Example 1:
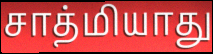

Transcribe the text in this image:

சாத்மியாது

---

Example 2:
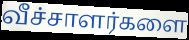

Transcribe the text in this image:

வீச்சாளர்களை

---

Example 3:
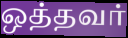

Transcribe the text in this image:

ஒத்தவர்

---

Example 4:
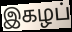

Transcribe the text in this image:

இகழப்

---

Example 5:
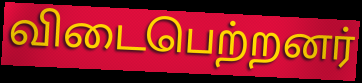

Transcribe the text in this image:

விடைபெற்றனர்